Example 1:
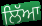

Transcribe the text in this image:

ਲਿੱਆ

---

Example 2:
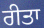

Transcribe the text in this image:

ਰੀਤਾ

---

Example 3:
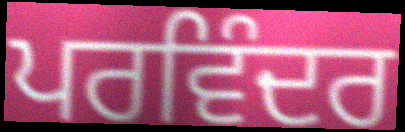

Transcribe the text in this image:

ਪਰਵਿੰਦਰ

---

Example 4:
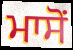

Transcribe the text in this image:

ਮਾਸੋਂ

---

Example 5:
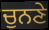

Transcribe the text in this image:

ਚੁਨਣੇ